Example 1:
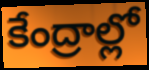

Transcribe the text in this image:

కేంద్రాల్లో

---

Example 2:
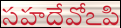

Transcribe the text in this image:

సహదేవోఽపి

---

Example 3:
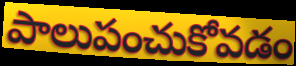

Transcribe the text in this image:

పాలుపంచుకోవడం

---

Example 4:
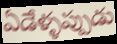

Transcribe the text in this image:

ఏడేళ్ళప్పుడు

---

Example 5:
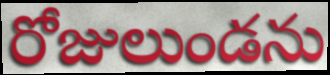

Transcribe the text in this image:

రోజులుండను